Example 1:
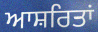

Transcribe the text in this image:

ਆਸ਼ਰਿਤਾਂ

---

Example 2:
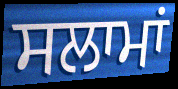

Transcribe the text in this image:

ਸਲਾਮਾਂ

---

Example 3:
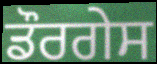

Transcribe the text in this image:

ਡੌਰਗੇਸ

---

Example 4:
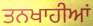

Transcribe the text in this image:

ਤਨਖਾਹੀਆਂ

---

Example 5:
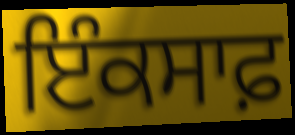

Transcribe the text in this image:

ਇੰਕਸਾਫ਼